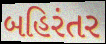
બહિરંતર